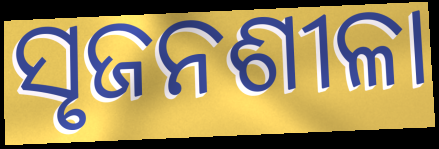
ସୃଜନଶୀଳା